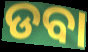
ଡବା